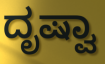
ದೃಷ್ವಾ